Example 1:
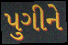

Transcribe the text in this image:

પુગીને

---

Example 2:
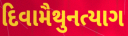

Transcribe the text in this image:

દિવામૈથુનત્યાગ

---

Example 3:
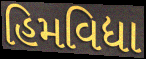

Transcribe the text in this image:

હિમવિદ્યા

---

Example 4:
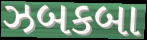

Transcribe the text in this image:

ઝબકબા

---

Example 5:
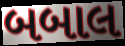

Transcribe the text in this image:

બબાલ